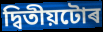
দ্বিতীয়টোৰ